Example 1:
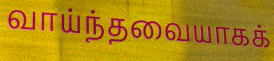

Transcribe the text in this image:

வாய்ந்தவையாகக்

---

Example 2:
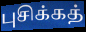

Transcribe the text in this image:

புசிக்கத்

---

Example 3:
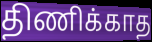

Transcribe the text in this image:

திணிக்காத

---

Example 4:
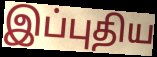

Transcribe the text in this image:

இப்புதிய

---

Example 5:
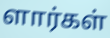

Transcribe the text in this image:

ளார்கள்